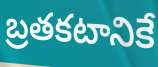
బ్రతకటానికే